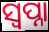
ସ୍ଵପ୍ନା